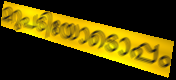
മറുപടിയോടൊപ്പം